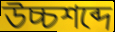
উচ্চশব্দে